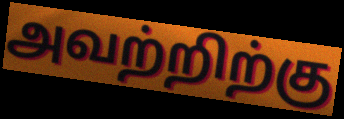
அவற்றிற்கு